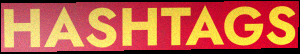
HASHTAGS